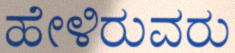
ಹೇಳಿರುವರು